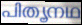
പിതൄനഥ